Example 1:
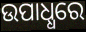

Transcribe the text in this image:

ଉପାଧ୍ଧରେ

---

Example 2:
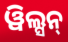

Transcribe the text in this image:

ୱିଲ୍ସନ୍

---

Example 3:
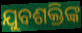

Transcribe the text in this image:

ଯୁବଶକ୍ତିଙ୍କ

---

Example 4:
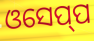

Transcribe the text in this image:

ଓସେପ୍‍ପ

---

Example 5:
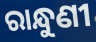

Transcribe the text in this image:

ରାନ୍ଧୁଣୀ